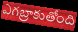
ఎగబ్రాకుతోంది